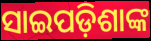
ସାଇପଡ଼ିଶାଙ୍କ